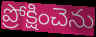
ప్రోక్షించెను